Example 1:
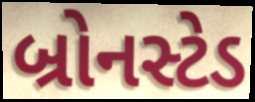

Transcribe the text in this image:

બ્રોનસ્ટેડ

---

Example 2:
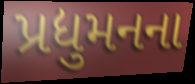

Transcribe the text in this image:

પ્રદ્યુમનના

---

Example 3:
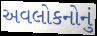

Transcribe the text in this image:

અવલોકનોનું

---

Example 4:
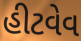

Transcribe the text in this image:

હીટવેવ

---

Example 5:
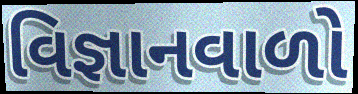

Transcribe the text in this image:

વિજ્ઞાનવાળો